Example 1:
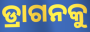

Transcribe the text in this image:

ଡ୍ରାଗନକୁ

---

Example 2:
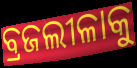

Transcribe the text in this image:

ବ୍ରଜଲୀଳାକୁ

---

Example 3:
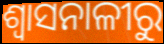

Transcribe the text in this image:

ଶ୍ୱାସନାଳୀରୁ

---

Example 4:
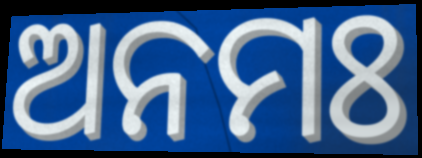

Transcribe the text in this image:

ଅନମଃ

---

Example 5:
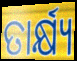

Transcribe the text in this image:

ତାର୍କ୍ଷ୍ୟ